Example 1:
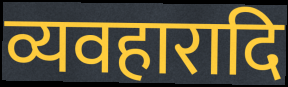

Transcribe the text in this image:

व्यवहारादि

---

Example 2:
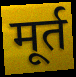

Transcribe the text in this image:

मूर्त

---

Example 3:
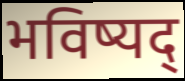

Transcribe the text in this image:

भविष्यद्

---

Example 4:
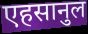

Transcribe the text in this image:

एहसानुल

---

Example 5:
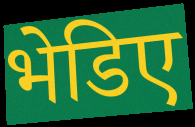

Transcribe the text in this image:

भेडिए